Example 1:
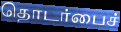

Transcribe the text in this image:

தொடர்பைச்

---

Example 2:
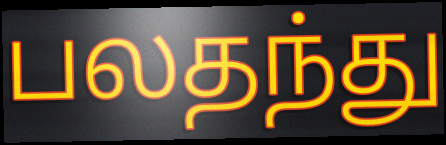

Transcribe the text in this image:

பலதந்து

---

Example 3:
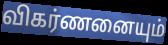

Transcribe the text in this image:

விகர்ணனையும்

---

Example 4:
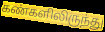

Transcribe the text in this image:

கண்களிலிருந்து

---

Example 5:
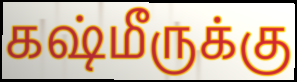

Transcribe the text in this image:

கஷ்மீருக்கு